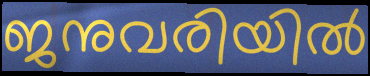
ജനുവരിയിൽ